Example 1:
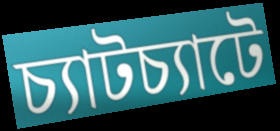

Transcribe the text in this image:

চ্যাটচ্যাটে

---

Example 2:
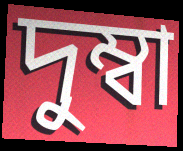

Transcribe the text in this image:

দুম্বা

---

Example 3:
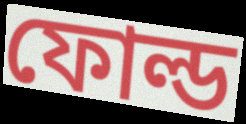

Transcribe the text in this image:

ফোল্ড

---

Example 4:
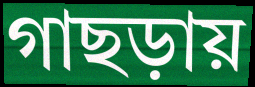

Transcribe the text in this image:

গাছড়ায়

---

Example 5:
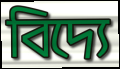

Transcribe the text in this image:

বিদ্যে